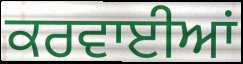
ਕਰਵਾਈਆਂ